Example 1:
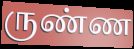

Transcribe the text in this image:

ருண்ண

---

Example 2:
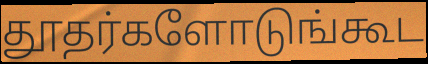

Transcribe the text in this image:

தூதர்களோடுங்கூட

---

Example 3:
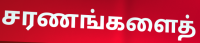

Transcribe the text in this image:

சரணங்களைத்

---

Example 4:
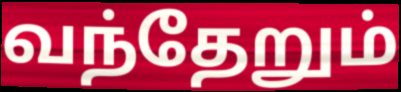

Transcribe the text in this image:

வந்தேறும்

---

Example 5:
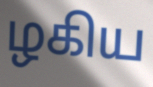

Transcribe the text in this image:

ழகிய